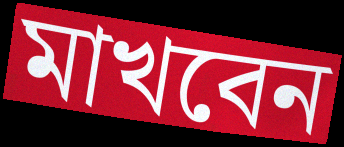
মাখবেন